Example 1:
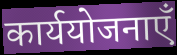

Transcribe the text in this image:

कार्ययोजनाएँ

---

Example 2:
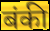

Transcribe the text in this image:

बंकी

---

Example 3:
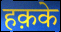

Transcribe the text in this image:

हक़के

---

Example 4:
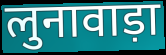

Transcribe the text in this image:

लुनावाड़ा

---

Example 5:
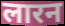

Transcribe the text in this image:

लारन